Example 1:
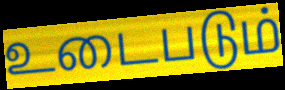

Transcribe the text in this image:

உடைபடும்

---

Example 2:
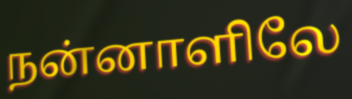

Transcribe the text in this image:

நன்னாளிலே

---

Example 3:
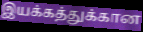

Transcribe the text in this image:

இயக்கத்துக்கான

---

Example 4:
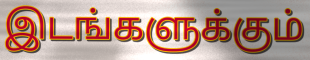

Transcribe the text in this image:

இடங்களுக்கும்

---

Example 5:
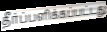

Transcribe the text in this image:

தீர்ப்பளிக்கப்பட்டது